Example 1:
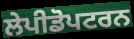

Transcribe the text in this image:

ਲੇਪੀਡੋਪਟਰਨ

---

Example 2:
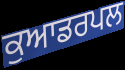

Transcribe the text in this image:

ਕੁਆਡਰਪਲ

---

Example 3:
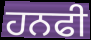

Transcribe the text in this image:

ਹਨਫੀ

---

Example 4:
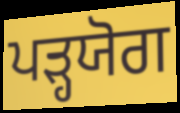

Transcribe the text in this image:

ਪੜ੍ਹਯੋਗ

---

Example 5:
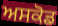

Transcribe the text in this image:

ਅਸਕੋਡ